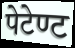
पेटेण्ट